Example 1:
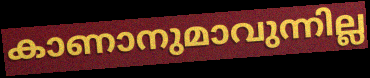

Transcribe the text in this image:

കാണാനുമാവുന്നില്ല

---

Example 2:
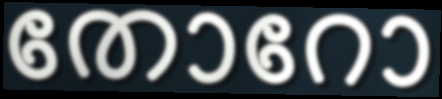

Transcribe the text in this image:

തോറോ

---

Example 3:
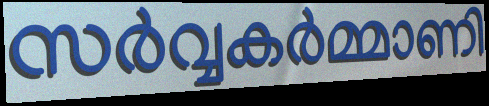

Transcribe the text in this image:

സർവ്വകർമ്മാണി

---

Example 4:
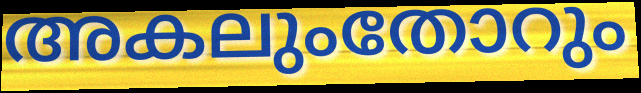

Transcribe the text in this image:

അകലുംതോറും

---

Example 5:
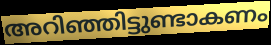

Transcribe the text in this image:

അറിഞ്ഞിട്ടുണ്ടാകണം